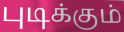
புடிக்கும்